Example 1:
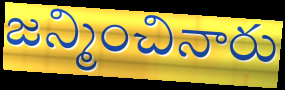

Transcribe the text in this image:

జన్మించినారు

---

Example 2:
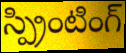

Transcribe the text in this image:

స్ప్రింటింగ్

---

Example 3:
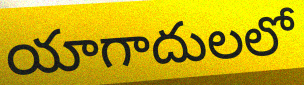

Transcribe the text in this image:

యాగాదులలో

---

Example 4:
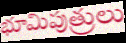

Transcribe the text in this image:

భూమిపుత్రులు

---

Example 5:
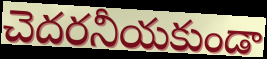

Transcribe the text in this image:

చెదరనీయకుండా